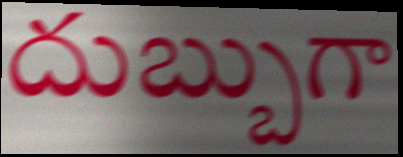
దుబ్బుగా